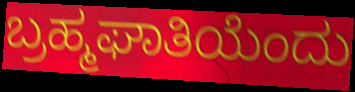
ಬ್ರಹ್ಮಘಾತಿಯೆಂದು